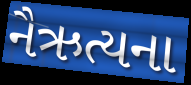
નૈઋત્યના